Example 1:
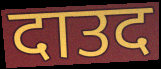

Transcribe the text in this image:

दाउद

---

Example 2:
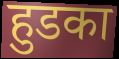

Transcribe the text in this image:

हुडका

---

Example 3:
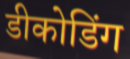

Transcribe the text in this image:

डीकोडिंग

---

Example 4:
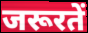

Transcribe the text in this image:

जरूरतें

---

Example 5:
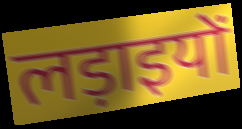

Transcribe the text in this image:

लड़ाइयों